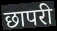
छापरी